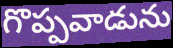
గొప్పవాడును